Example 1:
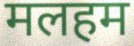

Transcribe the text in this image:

मलहम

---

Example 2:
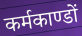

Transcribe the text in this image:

कर्मकाण्डों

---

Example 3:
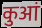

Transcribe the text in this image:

कुआं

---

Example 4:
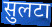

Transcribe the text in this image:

सुलटा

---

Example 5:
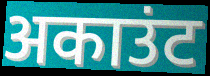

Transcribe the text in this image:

अकाउंट